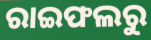
ରାଇଫଲରୁ